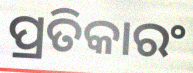
ପ୍ରତିକାରଂ